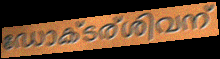
ഡോക്ടര്ശിവന്